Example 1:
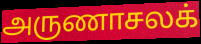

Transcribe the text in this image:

அருணாசலக்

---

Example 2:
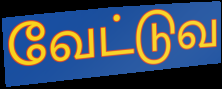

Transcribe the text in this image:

வேட்டுவ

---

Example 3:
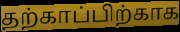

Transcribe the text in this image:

தற்காப்பிற்காக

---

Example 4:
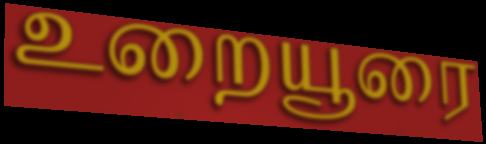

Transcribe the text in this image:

உறையூரை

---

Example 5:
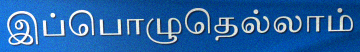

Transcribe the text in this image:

இப்பொழுதெல்லாம்